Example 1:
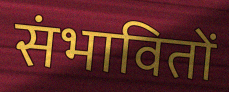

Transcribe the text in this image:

संभावितों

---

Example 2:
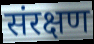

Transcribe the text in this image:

संरक्षण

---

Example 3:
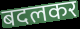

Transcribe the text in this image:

बदलकर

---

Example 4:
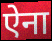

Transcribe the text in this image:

ऐना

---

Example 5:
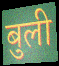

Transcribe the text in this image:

बुली